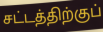
சட்டத்திற்குப்